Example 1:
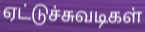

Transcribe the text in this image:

ஏட்டுச்சுவடிகள்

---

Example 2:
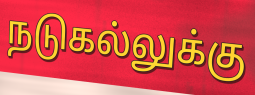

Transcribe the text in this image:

நடுகல்லுக்கு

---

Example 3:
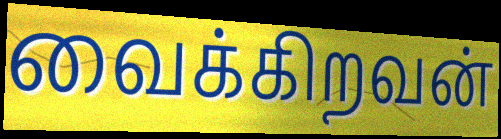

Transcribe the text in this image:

வைக்கிறவன்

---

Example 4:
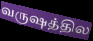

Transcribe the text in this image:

வருஷத்தில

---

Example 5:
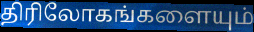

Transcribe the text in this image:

திரிலோகங்களையும்